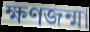
ক্ষণজন্মা